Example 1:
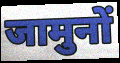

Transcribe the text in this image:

जामुनों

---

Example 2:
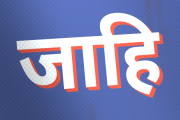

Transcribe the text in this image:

जाहि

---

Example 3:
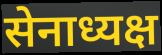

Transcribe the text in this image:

सेनाध्यक्ष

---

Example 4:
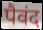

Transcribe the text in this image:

पैवंद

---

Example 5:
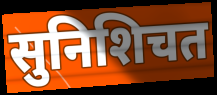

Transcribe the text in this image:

सुनिशिचत